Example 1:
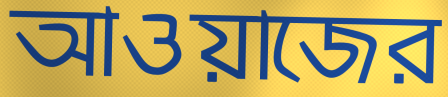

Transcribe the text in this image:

আওয়াজের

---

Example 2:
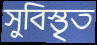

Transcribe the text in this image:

সুবিস্তৃত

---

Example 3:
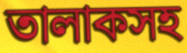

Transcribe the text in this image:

তালাকসহ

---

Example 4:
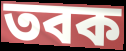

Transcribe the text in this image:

তবক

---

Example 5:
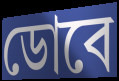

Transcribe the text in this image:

ডোবে